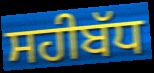
ਸਹੀਬੱਧ